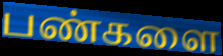
பண்களை